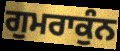
ਗੁਮਰਾਕੁੰਨ